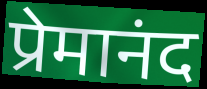
प्रेमानंद